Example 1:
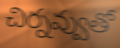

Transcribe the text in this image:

చిర్నవ్వుతో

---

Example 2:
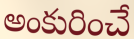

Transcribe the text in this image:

అంకురించే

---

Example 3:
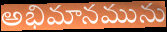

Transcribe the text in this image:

అభిమానమును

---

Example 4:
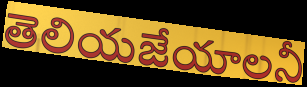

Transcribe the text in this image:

తెలియజేయాలనీ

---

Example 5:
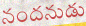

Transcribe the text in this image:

నందనుడు